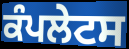
ਕੰਪਲੇਟਸ